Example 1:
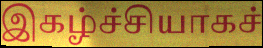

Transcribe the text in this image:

இகழ்ச்சியாகச்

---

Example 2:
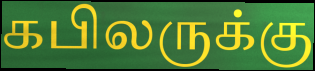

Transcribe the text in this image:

கபிலருக்கு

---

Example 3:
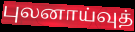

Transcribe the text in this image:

புலனாய்வுத்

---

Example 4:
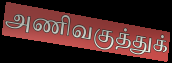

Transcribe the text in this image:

அணிவகுத்துக்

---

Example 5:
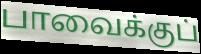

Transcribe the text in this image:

பாவைக்குப்